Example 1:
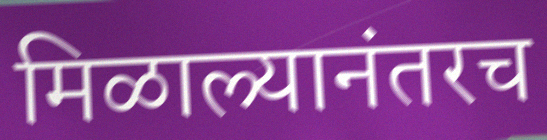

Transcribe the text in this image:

मिळाल्यानंतरच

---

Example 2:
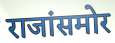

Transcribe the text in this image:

राजांसमोर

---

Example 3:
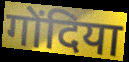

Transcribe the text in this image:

गोंदिया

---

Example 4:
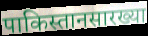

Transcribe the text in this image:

पाकिस्तानसारख्या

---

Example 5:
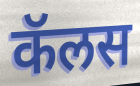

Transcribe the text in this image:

कॅलस